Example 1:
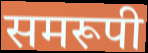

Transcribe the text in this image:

समरूपी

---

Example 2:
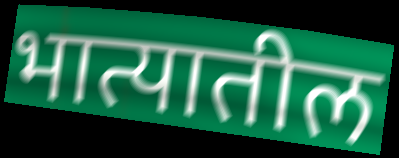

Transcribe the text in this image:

भात्यातील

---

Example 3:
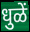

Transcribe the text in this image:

धुळें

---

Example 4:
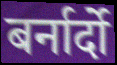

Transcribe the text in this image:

बर्नार्दो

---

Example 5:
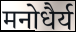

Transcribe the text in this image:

मनोधैर्य